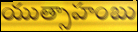
యుత్సాహంబు